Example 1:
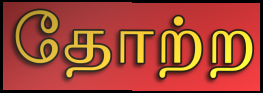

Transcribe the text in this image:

தோற்ற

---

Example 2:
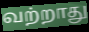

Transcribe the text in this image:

வற்றாது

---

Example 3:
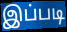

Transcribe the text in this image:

இப்படி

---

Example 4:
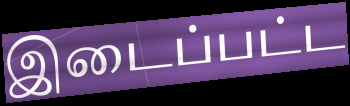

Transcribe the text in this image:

இடைப்பட்ட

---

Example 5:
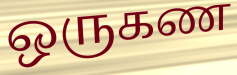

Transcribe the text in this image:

ஒருகண